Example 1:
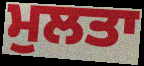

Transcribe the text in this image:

ਮੁਲਤਾ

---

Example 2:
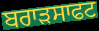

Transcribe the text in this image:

ਬਰਾੜਸਾਫਟ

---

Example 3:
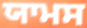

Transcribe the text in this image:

ਯਾਮਸ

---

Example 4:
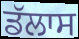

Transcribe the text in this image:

ਡੱਲਾਸ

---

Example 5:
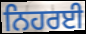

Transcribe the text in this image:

ਨਿਹਰਈ